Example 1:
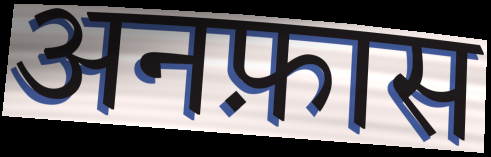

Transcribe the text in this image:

अनफ़ास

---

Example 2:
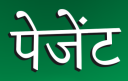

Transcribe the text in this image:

पेजेंट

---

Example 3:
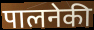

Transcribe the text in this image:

पालनेकी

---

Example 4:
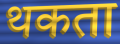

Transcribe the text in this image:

थकता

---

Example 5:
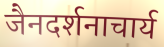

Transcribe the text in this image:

जैनदर्शनाचार्य